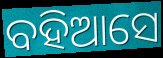
ବହିଆସେ